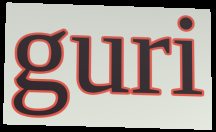
guri